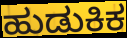
ಹುಡುಕಿಕ